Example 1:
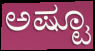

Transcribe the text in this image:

ಅಷ್ಟೂ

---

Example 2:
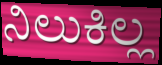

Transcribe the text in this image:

ನಿಲುಕಿಲ್ಲ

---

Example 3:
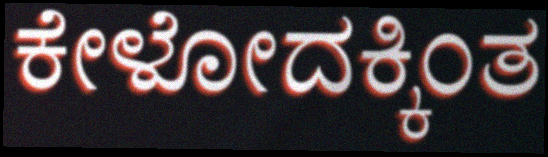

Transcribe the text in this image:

ಕೇಳೋದಕ್ಕಿಂತ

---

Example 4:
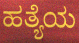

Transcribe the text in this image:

ಹತ್ಯೆಯ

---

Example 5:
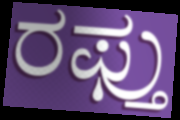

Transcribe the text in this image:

ರಫ್ತು